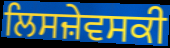
ਲਿਸਜ਼ੇਵਸਕੀ